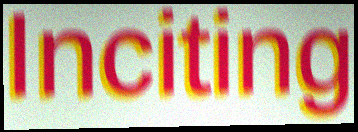
Inciting